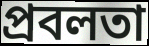
প্ৰবলতা